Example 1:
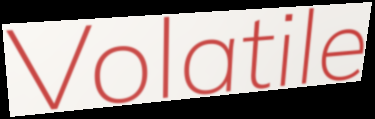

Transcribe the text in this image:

Volatile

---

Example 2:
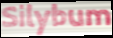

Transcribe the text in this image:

Silybum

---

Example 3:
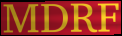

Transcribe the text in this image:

MDRF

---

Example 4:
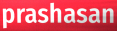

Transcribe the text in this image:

prashasan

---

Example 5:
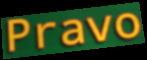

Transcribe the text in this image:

Pravo